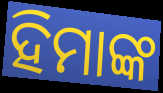
ହିମାଙ୍କ